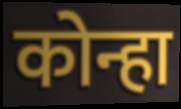
कोन्हा